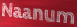
Naanum